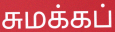
சுமக்கப்